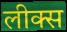
लीक्स